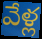
వేళ్ల